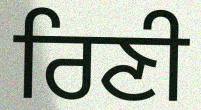
ਰਿਣੀ